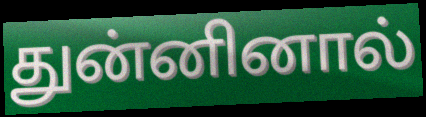
துன்னினால்